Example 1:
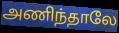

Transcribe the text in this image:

அணிந்தாலே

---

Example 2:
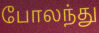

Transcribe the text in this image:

போலந்து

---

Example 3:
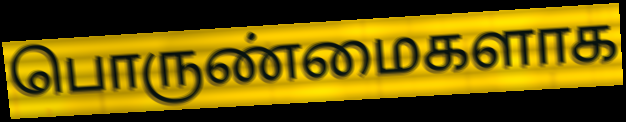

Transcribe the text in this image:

பொருண்மைகளாக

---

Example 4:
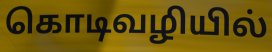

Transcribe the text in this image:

கொடிவழியில்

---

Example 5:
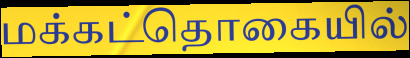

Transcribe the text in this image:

மக்கட்தொகையில்